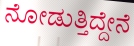
ನೋಡುತ್ತಿದ್ದೇನೆ